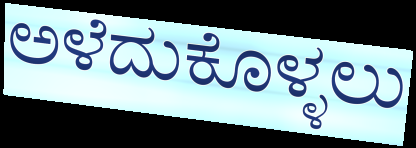
ಅಳೆದುಕೊಳ್ಳಲು